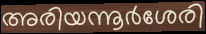
അരിയന്നൂർശേരി